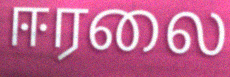
ஈரலை